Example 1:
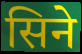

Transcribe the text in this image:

सिने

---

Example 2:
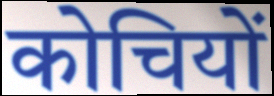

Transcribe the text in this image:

कोचियों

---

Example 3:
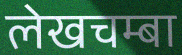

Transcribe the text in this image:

लेखचम्बा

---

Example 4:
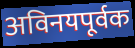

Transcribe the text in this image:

अविनयपूर्वक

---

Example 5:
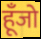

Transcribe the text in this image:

हूँजो